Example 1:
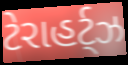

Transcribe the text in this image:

ટેરાહર્ટ્ઝ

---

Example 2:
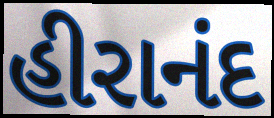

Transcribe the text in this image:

હીરાનંદ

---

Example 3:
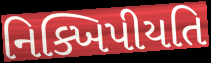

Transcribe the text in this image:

નિક્ખિપીયતિ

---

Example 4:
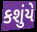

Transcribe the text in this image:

કશુંયે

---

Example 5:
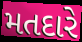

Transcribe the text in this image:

મતદારે